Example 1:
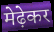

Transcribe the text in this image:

मेढ़ेकर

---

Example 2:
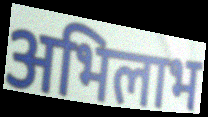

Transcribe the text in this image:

अभिलाभ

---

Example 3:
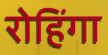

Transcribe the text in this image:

रोहिंगा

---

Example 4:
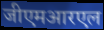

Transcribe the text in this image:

जीएमआरएल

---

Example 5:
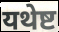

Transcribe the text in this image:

यथेष्ट